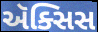
ઍક્સિસ